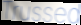
Trussed